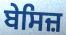
ਬੇਸਿਜ਼